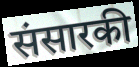
संसारकी